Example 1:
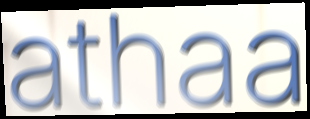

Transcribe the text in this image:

athaa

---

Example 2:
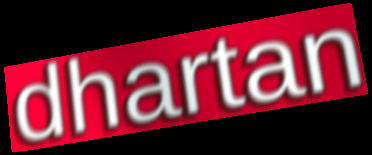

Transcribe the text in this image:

dhartan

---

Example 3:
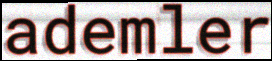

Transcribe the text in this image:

ademler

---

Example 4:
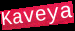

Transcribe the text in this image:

Kaveya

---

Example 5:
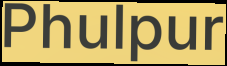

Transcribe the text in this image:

Phulpur